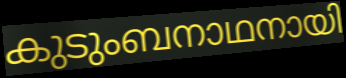
കുടുംബനാഥനായി